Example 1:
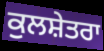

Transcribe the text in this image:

ਕੁਲਸ਼ੇਤਰਾ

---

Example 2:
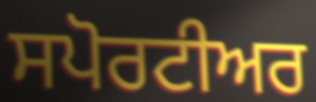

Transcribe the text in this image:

ਸਪੋਰਟੀਅਰ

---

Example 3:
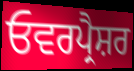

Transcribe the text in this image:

ਓਵਰਪ੍ਰੈਸ਼ਰ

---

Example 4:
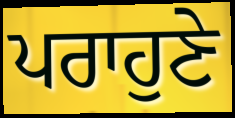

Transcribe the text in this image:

ਪਰਾਹੁਣੇ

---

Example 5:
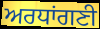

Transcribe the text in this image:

ਅਰਧਾਂਗਣੀ